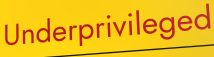
Underprivileged